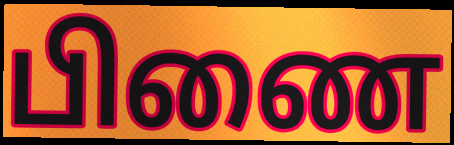
பிணை